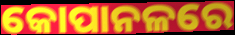
କୋପାନଳରେ